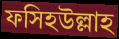
ফসিহউল্লাহ